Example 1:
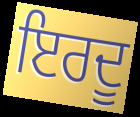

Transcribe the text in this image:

ਇਰਦੂ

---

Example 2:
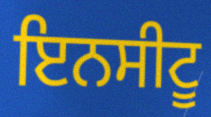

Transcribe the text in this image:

ਇਨਸੀਟੂ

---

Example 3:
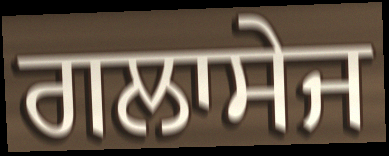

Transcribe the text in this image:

ਗਲਾਸੇਜ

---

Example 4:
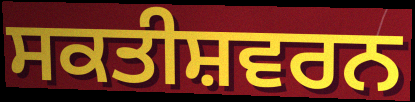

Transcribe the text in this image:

ਸਕਤੀਸ਼ਵਰਨ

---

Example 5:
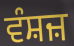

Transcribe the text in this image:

ਵੰਸ਼ਜ਼